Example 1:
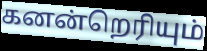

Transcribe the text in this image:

கனன்றெரியும்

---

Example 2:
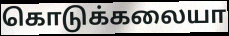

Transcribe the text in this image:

கொடுக்கலையா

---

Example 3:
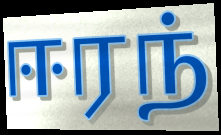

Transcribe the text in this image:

ஈரந்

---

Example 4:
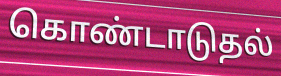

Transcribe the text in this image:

கொண்டாடுதல்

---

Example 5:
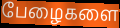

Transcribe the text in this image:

பேழைகளை